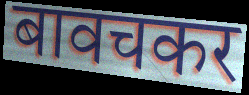
बावचकर